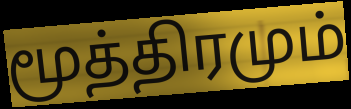
மூத்திரமும்